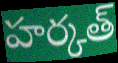
హర్కత్